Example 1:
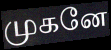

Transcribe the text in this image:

முகனே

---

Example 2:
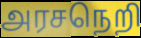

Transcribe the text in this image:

அரசநெறி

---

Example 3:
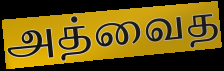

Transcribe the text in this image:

அத்வைத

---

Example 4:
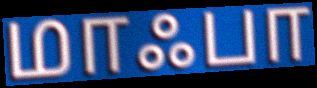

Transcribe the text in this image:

மாஃபா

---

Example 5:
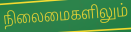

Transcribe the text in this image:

நிலைமைகளிலும்